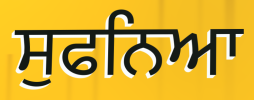
ਸੁਫਨਿਆ